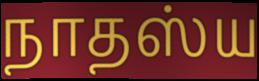
நாதஸ்ய